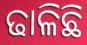
ଢାଳିଛି